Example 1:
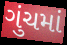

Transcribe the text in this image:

ગુંચમાં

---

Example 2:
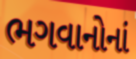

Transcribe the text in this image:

ભગવાનોનાં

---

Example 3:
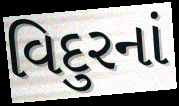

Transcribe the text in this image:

વિદુરનાં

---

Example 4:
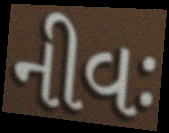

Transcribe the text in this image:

નીવઃ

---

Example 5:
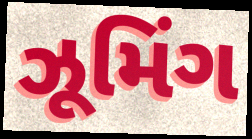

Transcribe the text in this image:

ઝૂમિંગ